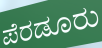
ಪೆರಡೂರು